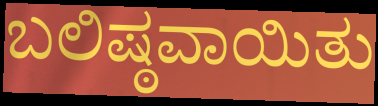
ಬಲಿಷ್ಠವಾಯಿತು